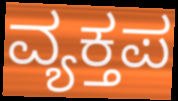
ವ್ಯಕ್ತಪ